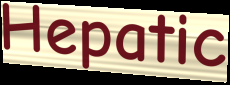
Hepatic